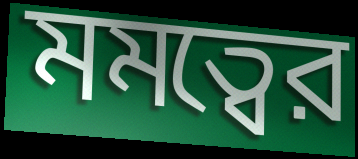
মমত্বের